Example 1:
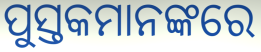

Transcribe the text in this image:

ପୁସ୍ତକମାନଙ୍କରେ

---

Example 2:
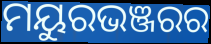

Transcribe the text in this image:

ମୟୁରଭଞ୍ଜରର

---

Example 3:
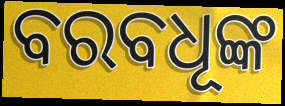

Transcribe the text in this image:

ବରବଧୂଙ୍କ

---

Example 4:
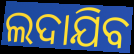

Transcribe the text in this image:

ଲଦାଯିବ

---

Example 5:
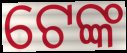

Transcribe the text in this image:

ଟେଙ୍କ